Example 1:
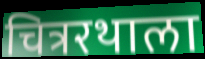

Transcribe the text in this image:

चित्ररथाला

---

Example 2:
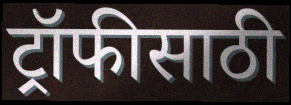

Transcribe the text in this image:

ट्रॉफीसाठी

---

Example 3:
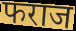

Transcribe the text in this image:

फराज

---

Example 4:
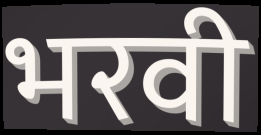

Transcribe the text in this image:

भरवी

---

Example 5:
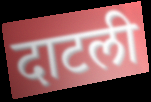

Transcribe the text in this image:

दाटली